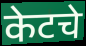
केटचे